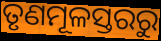
ତୃଣମୂଳସ୍ତରରୁ